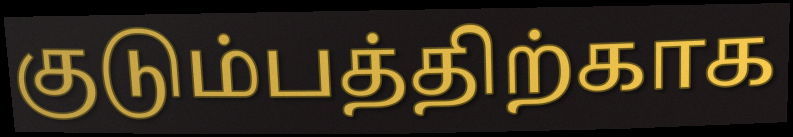
குடும்பத்திற்காக